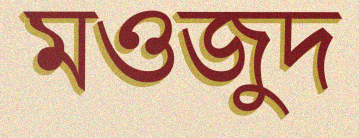
মওজুদ